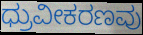
ಧ್ರುವೀಕರಣವು